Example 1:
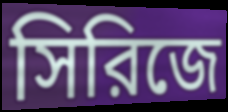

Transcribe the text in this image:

সিরিজে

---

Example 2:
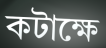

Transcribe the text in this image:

কটাক্ষে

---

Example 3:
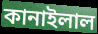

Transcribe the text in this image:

কানাইলাল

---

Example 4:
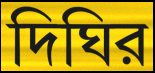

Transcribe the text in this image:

দিঘির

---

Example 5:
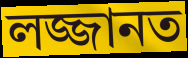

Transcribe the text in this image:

লজ্জানত